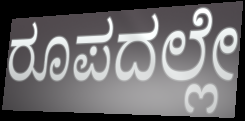
ರೂಪದಲ್ಲೇ